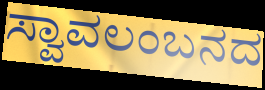
ಸ್ವಾವಲಂಬನದ